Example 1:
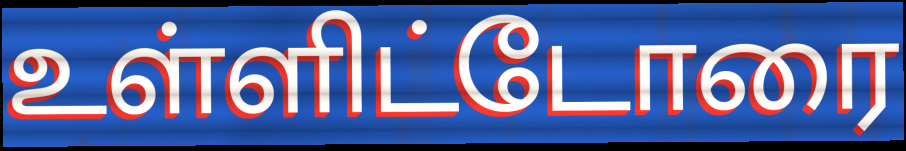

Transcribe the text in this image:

உள்ளிட்டோரை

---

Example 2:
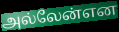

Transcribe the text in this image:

அல்லேன்என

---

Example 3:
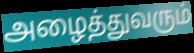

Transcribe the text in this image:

அழைத்துவரும்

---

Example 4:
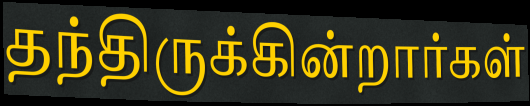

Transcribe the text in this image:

தந்திருக்கின்றார்கள்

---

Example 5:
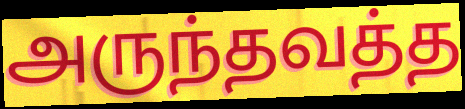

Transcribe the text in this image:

அருந்தவத்த